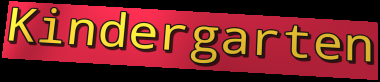
Kindergarten